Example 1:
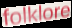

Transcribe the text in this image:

folklore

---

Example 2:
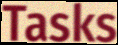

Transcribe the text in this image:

Tasks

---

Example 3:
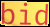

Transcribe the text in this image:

bid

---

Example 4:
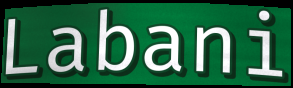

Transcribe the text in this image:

Labani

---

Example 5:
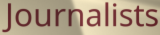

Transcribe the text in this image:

Journalists